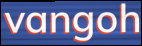
vangoh